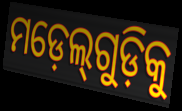
ମଡ଼େଲ୍‌ଗୁଡ଼ିକୁ